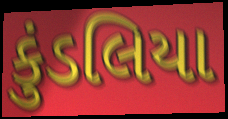
કુંડલિયા